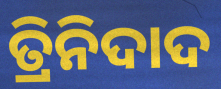
ତ୍ରିନିଦାଦ